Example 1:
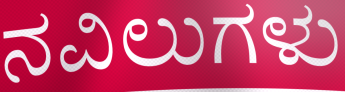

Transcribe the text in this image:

ನವಿಲುಗಳು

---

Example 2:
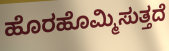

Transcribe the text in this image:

ಹೊರಹೊಮ್ಮಿಸುತ್ತದೆ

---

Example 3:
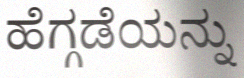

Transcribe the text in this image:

ಹೆಗ್ಗಡೆಯನ್ನು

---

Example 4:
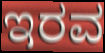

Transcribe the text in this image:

ಇರವ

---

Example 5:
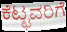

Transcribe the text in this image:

ಕೆಟ್ಟವರಿಗೆ